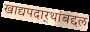
खाद्यपदार्थांबद्दल